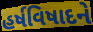
હર્ષવિષાદને